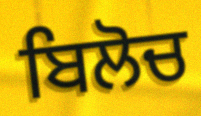
ਬਿਲੋਚ